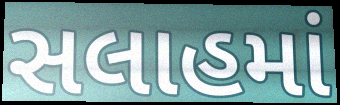
સલાહમાં